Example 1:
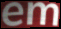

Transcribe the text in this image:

em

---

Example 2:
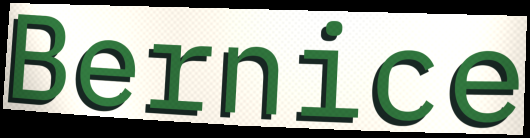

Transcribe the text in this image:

Bernice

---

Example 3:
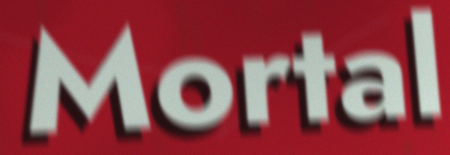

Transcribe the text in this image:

Mortal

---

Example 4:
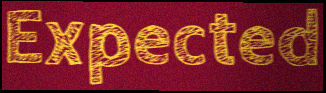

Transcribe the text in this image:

Expected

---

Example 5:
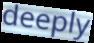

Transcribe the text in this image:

deeply